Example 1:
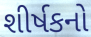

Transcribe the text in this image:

શીર્ષકનો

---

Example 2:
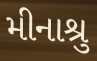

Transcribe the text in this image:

મીનાશ્રુ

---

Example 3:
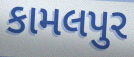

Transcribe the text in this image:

કામલપુર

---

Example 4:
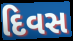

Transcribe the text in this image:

દિવસ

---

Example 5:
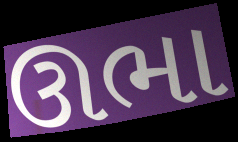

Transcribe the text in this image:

ઊભા